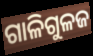
ଗାଳିଗୁଳଜ